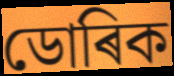
ডোৰিক